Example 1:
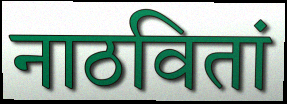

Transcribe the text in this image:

नाठवितां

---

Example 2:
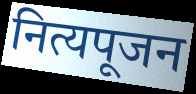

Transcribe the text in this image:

नित्यपूजन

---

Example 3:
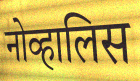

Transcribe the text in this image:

नोव्हालिस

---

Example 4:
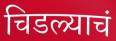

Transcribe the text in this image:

चिडल्याचं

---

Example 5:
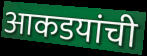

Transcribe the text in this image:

आकडयांची